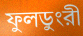
ফুলডুংরী